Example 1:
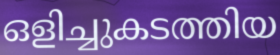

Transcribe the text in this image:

ഒളിച്ചുകടത്തിയ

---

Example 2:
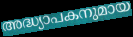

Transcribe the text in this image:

അദ്ധ്യാപകനുമായ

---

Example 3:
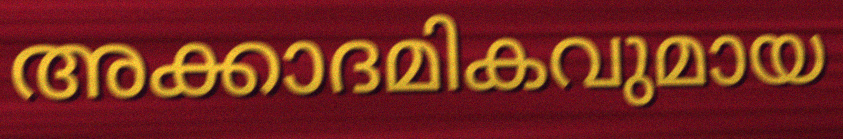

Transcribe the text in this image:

അക്കാദമികവുമായ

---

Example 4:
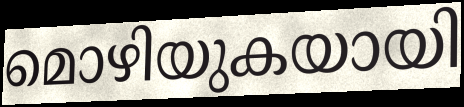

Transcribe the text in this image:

മൊഴിയുകയായി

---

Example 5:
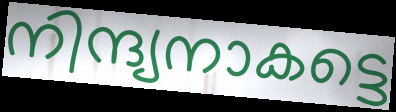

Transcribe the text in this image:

നിന്ദ്യനാകട്ടെ